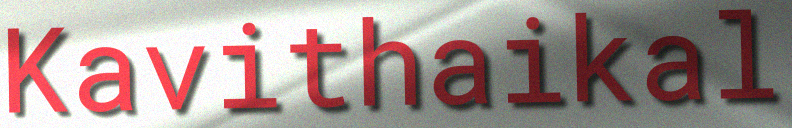
Kavithaikal